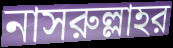
নাসরুল্লাহর